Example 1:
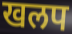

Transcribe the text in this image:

खलप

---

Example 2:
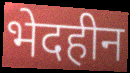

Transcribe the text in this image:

भेदहीन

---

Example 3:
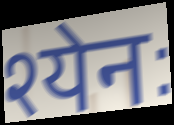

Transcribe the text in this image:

श्येनः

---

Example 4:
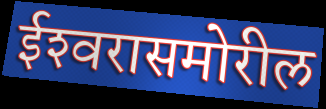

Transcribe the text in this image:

ईश्वरासमोरील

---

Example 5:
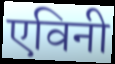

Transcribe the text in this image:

एविनी